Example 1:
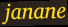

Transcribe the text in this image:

janane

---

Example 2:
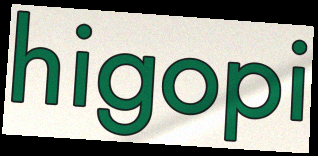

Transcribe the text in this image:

higopi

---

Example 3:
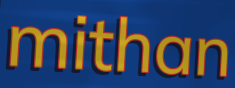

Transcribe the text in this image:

mithan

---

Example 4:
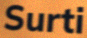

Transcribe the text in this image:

Surti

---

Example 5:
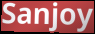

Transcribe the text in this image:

Sanjoy